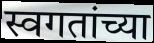
स्वगतांच्या